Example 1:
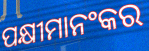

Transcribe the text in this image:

ପକ୍ଷୀମାନଂକର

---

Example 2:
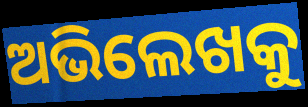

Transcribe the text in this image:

ଅଭିଲେଖକୁ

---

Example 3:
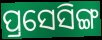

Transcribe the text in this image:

ପ୍ରସେସିଙ୍ଗ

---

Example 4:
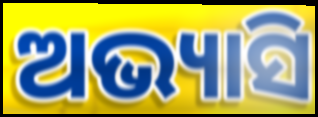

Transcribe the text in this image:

ଅଭ୍ୟାସି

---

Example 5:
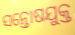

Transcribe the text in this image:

ସନ୍ତୋଷଯୁକ୍ତ